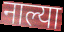
नाल्या